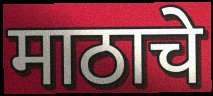
माठाचे